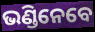
ଭଣ୍ଡିନେବେ